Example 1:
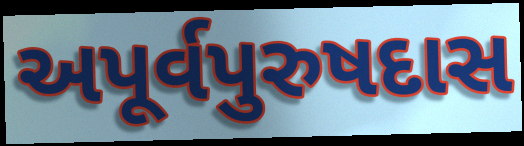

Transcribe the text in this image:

અપૂર્વપુરુષદાસ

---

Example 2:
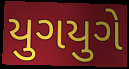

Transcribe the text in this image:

યુગયુગે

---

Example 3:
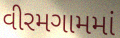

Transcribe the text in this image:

વીરમગામમાં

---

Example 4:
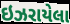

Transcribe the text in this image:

ઇઝરાયેલા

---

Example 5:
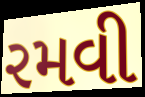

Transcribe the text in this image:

રમવી